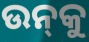
ଉନ୍‌କୁ